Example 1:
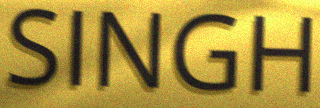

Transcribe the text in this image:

SINGH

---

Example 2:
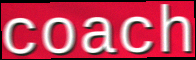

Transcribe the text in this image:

coach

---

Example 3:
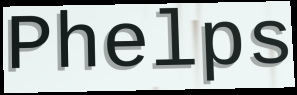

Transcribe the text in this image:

Phelps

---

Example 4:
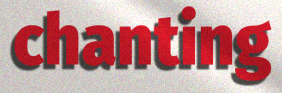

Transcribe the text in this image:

chanting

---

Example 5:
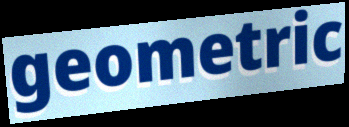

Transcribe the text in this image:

geometric